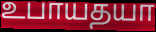
உபாயதயா